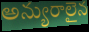
అన్యురాలైన